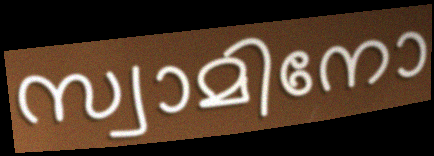
സ്വാമിനോ